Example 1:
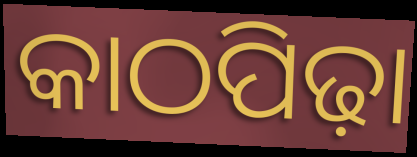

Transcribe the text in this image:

କାଠପିଢ଼ା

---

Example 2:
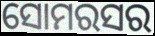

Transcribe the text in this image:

ସୋମରସର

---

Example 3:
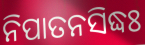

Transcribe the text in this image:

ନିପାତନସିଦ୍ଧଃ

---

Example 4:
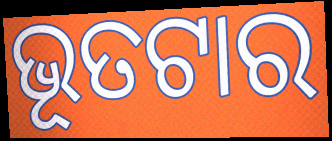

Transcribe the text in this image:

ଭୂତଟାର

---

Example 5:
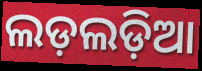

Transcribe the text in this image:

ଲଡ଼ଲଡ଼ିଆ